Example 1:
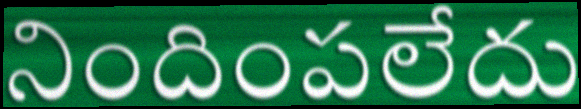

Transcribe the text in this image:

నిందింపలేదు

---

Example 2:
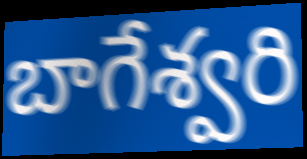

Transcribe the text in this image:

బాగేశ్వరి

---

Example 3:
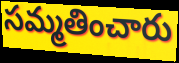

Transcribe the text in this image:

సమ్మతించారు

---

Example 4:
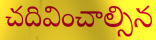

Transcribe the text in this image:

చదివించాల్సిన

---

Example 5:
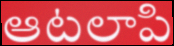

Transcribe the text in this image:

ఆటలాపి